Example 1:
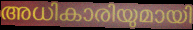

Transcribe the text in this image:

അധികാരിയുമായി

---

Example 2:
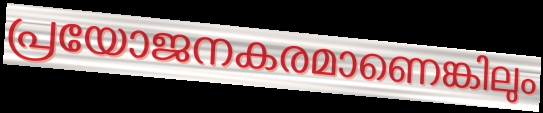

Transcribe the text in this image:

പ്രയോജനകരമാണെങ്കിലും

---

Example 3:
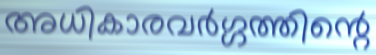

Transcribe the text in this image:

അധികാരവർഗ്ഗത്തിന്റെ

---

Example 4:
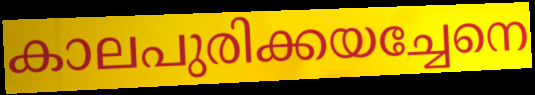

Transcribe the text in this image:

കാലപുരിക്കയച്ചേനെ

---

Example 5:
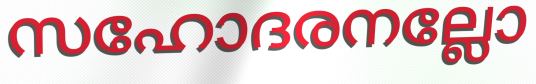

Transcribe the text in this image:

സഹോദരനല്ലോ